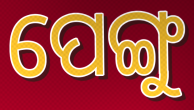
ପେଙ୍ଗୁ